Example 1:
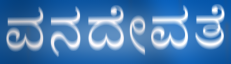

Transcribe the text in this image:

ವನದೇವತೆ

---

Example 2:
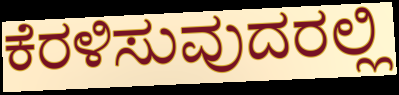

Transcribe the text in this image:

ಕೆರಳಿಸುವುದರಲ್ಲಿ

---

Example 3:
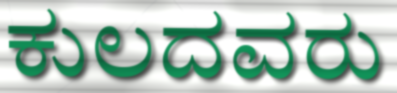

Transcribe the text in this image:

ಕುಲದವರು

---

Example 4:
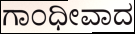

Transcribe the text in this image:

ಗಾಂಧೀವಾದ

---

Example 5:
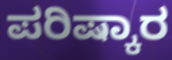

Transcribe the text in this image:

ಪರಿಷ್ಕಾರ